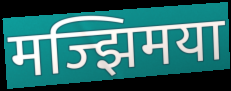
मज्झिमया